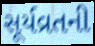
સૂર્યવ્રતની